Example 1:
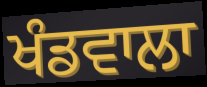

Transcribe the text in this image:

ਖੰਡਵਾਲਾ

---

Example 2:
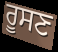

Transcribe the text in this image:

ਰੂਸਣ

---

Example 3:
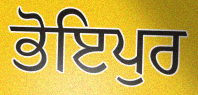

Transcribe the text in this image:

ਭੋਇਪੁਰ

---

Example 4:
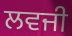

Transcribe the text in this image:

ਲਵਜੀ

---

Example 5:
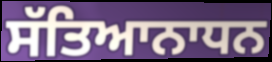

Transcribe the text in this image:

ਸੱਤਿਆਨਾਧਨ